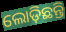
ଲୋଡ଼ିଛନ୍ତି